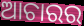
ଆଚାରର